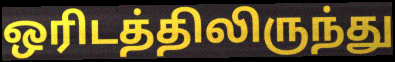
ஒரிடத்திலிருந்து